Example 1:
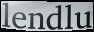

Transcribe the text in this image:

lendlu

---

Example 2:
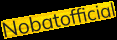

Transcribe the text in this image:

Nobatofficial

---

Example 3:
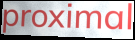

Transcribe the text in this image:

proximal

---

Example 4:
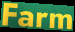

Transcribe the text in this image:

Farm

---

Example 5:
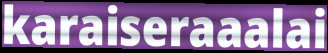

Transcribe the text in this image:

karaiseraaalai